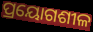
ପ୍ରୟୋଗଶୀଳ